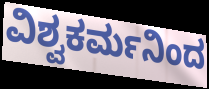
ವಿಶ್ವಕರ್ಮನಿಂದ